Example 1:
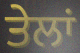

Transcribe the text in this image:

ਤੇਲਾਂ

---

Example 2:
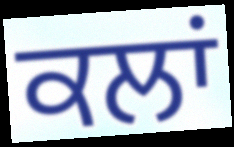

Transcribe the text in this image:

ਕਲਾਂ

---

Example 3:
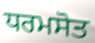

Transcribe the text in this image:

ਧਰਮਸੋਤ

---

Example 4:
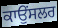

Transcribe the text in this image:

ਕਾਉਂਸਲਰ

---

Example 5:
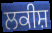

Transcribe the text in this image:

ਲਕੀਸ਼